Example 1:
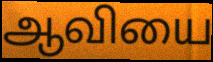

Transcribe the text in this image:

ஆவியை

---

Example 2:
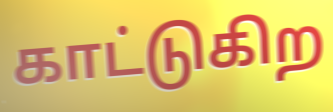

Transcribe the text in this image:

காட்டுகிற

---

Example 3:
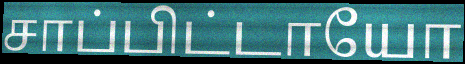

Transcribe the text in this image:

சாப்பிட்டாயோ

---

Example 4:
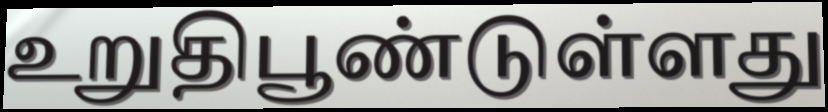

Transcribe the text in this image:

உறுதிபூண்டுள்ளது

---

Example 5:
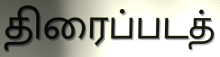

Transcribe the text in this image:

திரைப்படத்